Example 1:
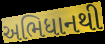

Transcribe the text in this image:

અભિધાનથી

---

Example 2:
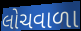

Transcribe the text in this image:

લોચવાળા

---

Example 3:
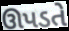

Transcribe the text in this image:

ઊપડતે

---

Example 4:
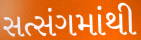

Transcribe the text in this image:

સત્સંગમાંથી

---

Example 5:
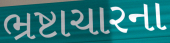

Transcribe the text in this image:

ભ્રષ્ટાચારના